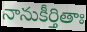
నానుకీర్తితాః